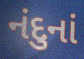
નંદુનાં